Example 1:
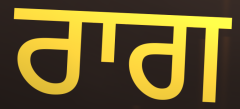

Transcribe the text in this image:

ਰਾਗ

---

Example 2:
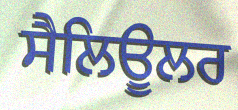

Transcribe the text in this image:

ਸੈਲਿਊਲਰ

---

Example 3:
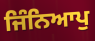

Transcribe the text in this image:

ਜਿੰਨਿਆਪੁ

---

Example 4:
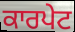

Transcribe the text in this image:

ਕਾਰਪੇਟ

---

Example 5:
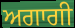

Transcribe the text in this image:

ਅਗਾਗੀ